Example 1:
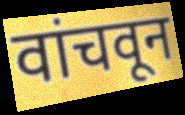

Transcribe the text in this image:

वांचवून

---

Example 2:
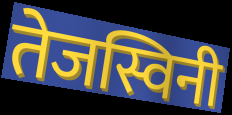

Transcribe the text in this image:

तेजस्विनी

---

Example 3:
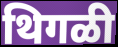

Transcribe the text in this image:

थिगळी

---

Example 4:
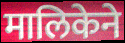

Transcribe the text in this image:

मालिकेने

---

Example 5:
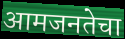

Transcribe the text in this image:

आमजनतेचा